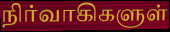
நிர்வாகிகளுள்